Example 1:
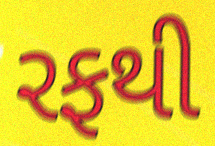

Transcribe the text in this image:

રફથી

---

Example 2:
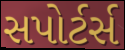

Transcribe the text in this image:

સપોર્ટર્સ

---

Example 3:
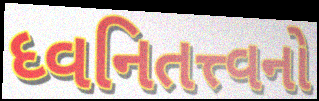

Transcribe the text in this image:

ધ્વનિતત્ત્વનો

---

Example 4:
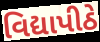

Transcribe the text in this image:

વિદ્યાપીઠે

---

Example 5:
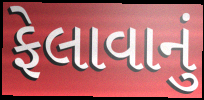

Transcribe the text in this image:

ફેલાવાનું